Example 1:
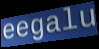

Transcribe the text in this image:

eegalu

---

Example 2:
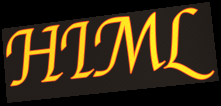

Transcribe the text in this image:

HIML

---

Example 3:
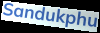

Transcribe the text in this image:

Sandukphu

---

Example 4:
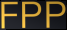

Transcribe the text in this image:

FPP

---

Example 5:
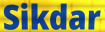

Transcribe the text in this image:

Sikdar